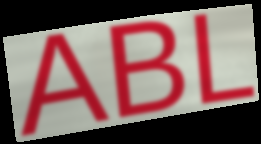
ABL